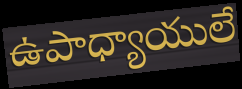
ఉపాధ్యాయులే